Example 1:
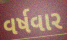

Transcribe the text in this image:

વર્ષવાર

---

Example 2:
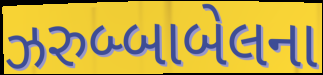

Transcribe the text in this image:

ઝરુબ્બાબેલના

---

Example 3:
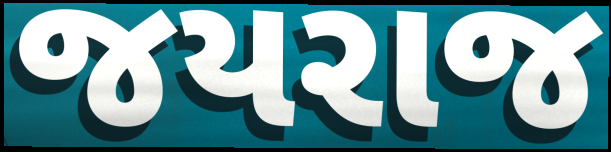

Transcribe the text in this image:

જયરાજ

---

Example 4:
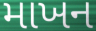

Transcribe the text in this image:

માખન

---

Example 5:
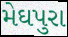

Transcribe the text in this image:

મેઘપુરા